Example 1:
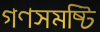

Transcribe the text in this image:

গণসমষ্টি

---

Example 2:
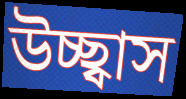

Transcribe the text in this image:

উচ্ছ্বাস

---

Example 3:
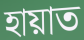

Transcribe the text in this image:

হায়াত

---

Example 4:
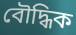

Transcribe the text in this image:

বৌদ্ধিক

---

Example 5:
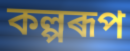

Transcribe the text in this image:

কল্পৰূপ